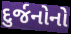
દુર્જનોનો